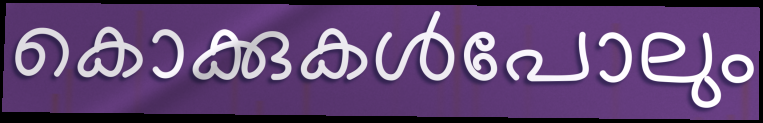
കൊക്കുകൾപോലും